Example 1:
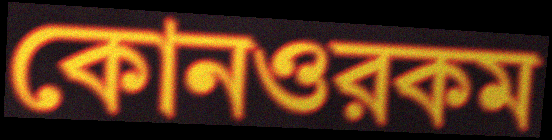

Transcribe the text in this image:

কোনওরকম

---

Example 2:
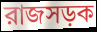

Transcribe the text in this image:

রাজসড়ক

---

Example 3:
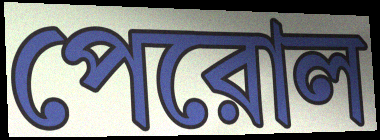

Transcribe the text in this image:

পেরোল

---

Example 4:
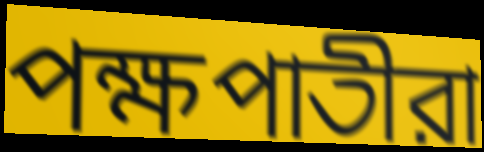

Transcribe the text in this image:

পক্ষপাতীরা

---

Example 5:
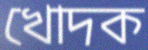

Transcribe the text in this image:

খোদক